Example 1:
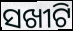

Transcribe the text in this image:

ସଖୀଟି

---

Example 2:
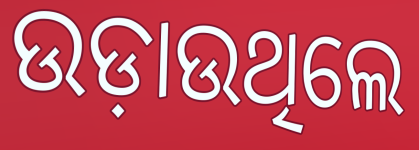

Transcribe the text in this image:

ଉଡ଼ାଉଥିଲେ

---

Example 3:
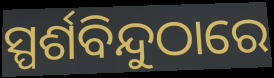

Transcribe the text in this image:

ସ୍ପର୍ଶବିନ୍ଦୁଠାରେ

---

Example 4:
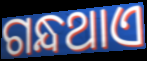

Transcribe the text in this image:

ଗନ୍ଧଥାଏ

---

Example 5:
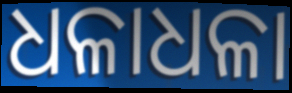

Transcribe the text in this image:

ଧଳାଧଳା